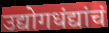
उद्योगधंद्यांचं